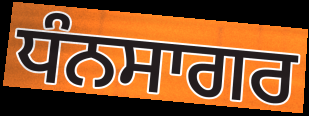
ਧੰਨਸਾਗਰ